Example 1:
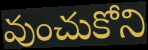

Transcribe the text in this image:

వుంచుకోని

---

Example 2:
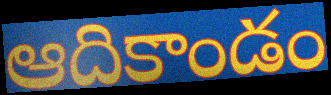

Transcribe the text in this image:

ఆదికాండం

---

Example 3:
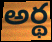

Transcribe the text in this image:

అర్థ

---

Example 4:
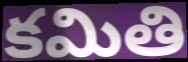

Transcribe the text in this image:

కమితి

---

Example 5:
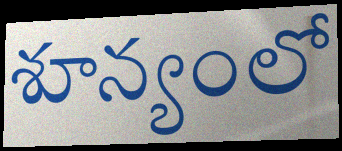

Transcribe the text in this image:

శూన్యంలో